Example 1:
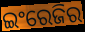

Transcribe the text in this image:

ଇଂରେଜିର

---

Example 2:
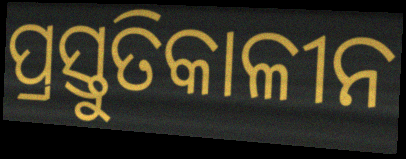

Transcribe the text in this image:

ପ୍ରସ୍ତୁତିକାଳୀନ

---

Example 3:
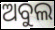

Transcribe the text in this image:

ଅବୁଲ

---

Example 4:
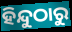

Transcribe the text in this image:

ହିନ୍ଦୁଠାରୁ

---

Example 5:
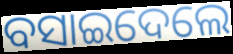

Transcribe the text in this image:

ବସାଇଦେଲେ